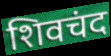
शिवचंद